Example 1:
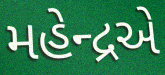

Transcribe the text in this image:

મહેન્દ્રએ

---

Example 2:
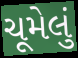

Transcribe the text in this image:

ચૂમેલું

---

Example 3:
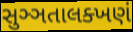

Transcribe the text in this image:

સુઞ્ઞતાલક્ખણં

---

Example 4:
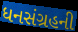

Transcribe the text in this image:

ધનસંગ્રહની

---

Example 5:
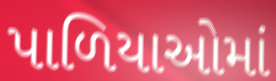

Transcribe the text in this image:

પાળિયાઓમાં